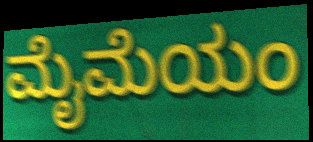
ಮೈಮೆಯಂ